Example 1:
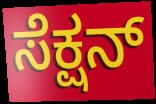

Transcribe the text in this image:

ಸೆಕ್ಷನ್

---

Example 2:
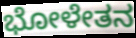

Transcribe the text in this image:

ಭೋಳೇತನ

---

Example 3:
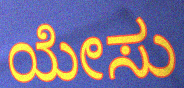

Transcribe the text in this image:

ಯೇಸು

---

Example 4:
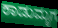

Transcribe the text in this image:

ಕಾಡುಮೃಗ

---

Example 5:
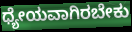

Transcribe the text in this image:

ಧ್ಯೇಯವಾಗಿರಬೇಕು